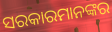
ସରକାରମାନଙ୍କର